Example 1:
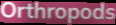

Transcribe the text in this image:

Orthropods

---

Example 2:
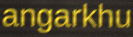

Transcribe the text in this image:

angarkhu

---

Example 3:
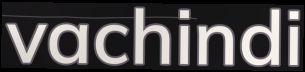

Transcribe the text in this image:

vachindi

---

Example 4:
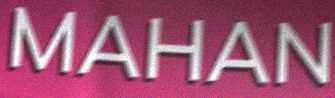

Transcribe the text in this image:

MAHAN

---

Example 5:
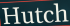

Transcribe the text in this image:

Hutch